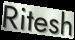
Ritesh